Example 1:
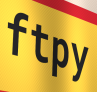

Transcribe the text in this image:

ftpy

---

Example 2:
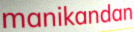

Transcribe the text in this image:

manikandan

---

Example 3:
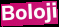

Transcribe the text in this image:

Boloji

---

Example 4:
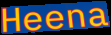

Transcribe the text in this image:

Heena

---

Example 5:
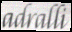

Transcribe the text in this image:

adralli